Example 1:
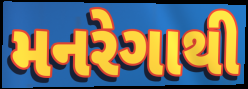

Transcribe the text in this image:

મનરેગાથી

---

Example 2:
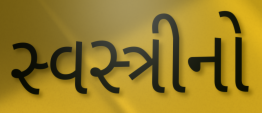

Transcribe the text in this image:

સ્વસ્ત્રીનો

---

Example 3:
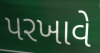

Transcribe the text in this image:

પરખાવે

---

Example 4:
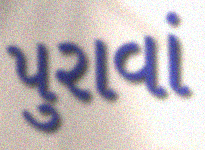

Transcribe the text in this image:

પુરાવાં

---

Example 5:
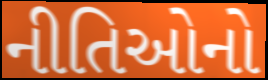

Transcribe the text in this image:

નીતિઓનો